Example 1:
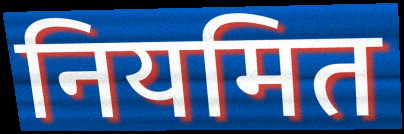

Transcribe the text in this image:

नियमित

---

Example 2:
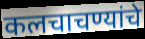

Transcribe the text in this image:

कलचाचण्यांचे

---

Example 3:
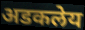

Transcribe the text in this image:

अडकलेय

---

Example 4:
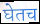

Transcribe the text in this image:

घेतच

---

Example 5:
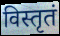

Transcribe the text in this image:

विस्तृतं